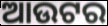
ଆଉଟର